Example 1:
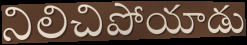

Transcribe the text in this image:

నిలిచిపోయాడు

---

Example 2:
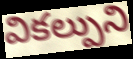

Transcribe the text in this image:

వికల్పుని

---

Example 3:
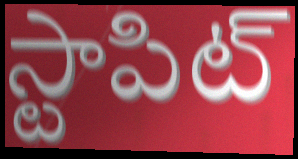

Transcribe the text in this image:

స్టాపిట్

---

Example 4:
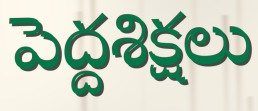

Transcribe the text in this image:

పెద్దశిక్షలు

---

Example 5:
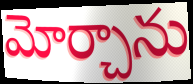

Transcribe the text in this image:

మోర్చాను